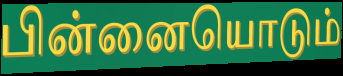
பின்னையொடும்